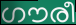
ഗൗരീ